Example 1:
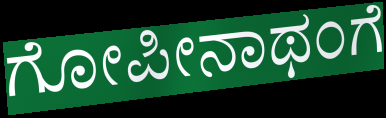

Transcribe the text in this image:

ಗೋಪೀನಾಥಂಗೆ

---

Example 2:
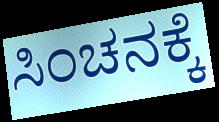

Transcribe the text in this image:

ಸಿಂಚನಕ್ಕೆ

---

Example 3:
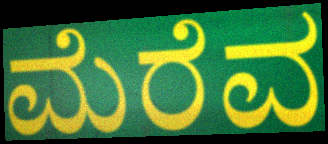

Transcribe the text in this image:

ಮೆರೆವ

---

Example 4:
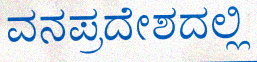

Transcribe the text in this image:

ವನಪ್ರದೇಶದಲ್ಲಿ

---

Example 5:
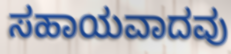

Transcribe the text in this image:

ಸಹಾಯವಾದವು